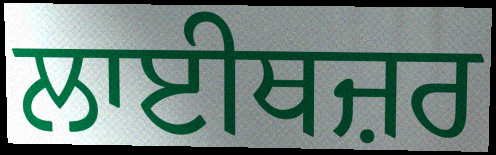
ਲਾਈਥਜ਼ਰ